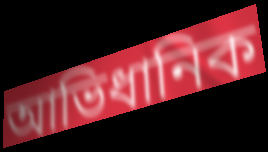
আভিধানিক